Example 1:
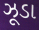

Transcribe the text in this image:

ઝૂડા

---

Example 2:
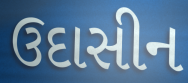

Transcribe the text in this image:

ઉદાસીન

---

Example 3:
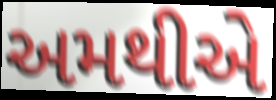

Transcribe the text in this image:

અમથીએ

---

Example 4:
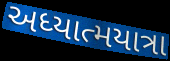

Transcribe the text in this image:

અધ્યાત્મયાત્રા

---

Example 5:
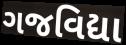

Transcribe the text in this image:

ગજવિદ્યા